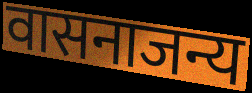
वासनाजन्य